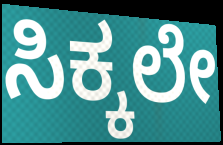
ಸಿಕ್ಕಲೇ